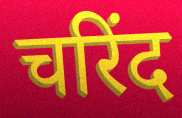
चरिंद